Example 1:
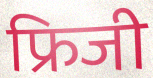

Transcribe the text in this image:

फ्रिजी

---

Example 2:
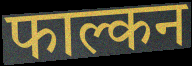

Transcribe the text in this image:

फाल्कन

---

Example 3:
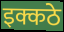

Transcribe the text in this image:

इक्कठे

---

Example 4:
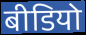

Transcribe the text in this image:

बीडियो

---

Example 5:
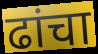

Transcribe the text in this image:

ढांचा